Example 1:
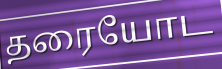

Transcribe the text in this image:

தரையோட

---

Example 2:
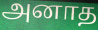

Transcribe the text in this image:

அனாத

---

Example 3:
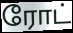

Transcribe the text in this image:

ரோட்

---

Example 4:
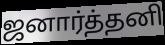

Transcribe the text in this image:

ஜனார்த்தனி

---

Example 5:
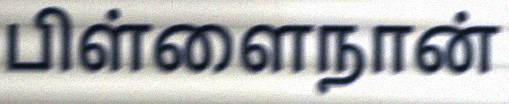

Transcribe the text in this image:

பிள்ளைநான்